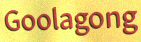
Goolagong